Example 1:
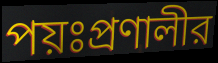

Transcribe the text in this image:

পয়ঃপ্রণালীর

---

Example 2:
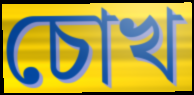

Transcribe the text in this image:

চোখ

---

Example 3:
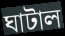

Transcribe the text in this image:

ঘাটাল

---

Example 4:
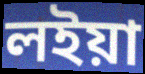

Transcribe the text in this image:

লইয়া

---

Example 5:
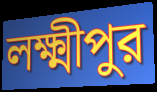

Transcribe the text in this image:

লক্ষ্মীপুর